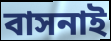
বাসনাই